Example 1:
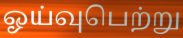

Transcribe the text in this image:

ஓய்வுபெற்று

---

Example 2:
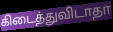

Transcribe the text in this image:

கிடைத்துவிடாதா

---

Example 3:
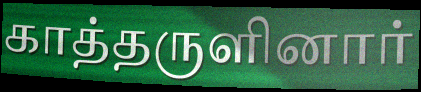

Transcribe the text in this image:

காத்தருளினார்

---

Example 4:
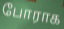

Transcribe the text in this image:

போராக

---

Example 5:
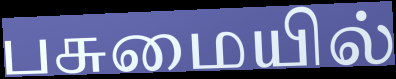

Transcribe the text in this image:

பசுமையில்